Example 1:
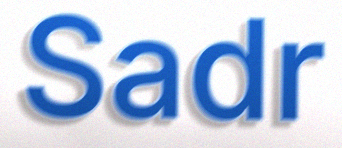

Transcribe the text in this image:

Sadr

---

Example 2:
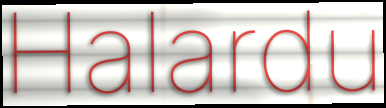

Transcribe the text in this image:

Halardu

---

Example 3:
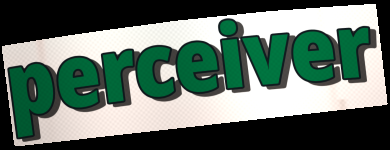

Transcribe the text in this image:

perceiver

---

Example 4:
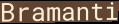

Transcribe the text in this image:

Bramanti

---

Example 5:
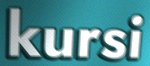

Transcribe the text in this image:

kursi